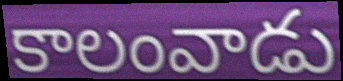
కాలంవాడు